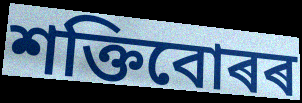
শক্তিবোৰৰ